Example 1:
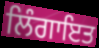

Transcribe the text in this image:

ਲਿੰਗਾਇਤ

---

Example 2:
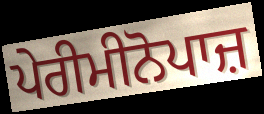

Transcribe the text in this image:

ਪੇਰੀਮੀਨੋਪਾਜ਼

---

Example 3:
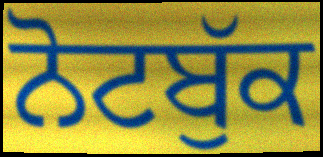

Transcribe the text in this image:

ਨੋਟਬੁੱਕ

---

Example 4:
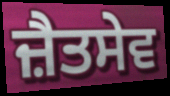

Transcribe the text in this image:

ਜ਼ੈਤਸੇਵ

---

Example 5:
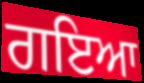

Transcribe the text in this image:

ਗਇਆ